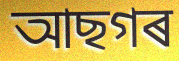
আছগৰ